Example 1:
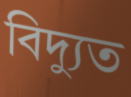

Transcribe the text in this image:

বিদ্যুত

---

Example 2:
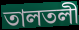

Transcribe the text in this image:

তালতলী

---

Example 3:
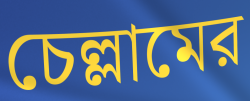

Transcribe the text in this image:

চেল্লামের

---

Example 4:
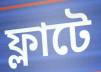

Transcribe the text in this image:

ফ্লাটে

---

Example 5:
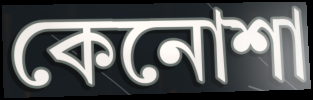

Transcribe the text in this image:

কেনোশা